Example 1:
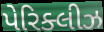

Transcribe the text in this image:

પેરિક્લીઝ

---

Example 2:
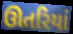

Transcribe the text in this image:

ઊતરિયાં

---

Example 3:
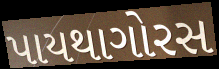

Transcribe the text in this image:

પાયથાગોરસ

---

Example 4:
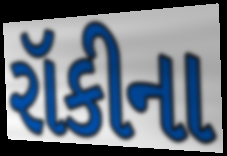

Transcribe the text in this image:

રૉકીના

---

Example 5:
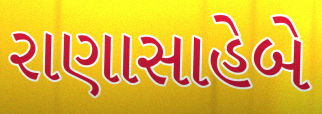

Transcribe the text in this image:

રાણાસાહેબે